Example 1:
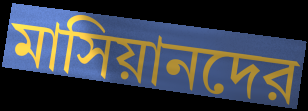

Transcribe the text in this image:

মাসিয়ানদের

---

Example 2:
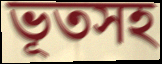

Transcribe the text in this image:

ভূতসহ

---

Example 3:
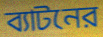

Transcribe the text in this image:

ব্যাটনের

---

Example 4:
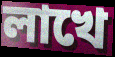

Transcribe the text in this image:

লাখে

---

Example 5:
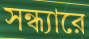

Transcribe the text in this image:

সন্ধ্যারে